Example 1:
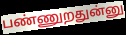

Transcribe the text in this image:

பண்ணுறதுன்னு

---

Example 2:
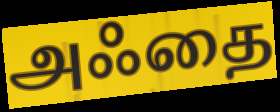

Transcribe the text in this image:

அஃதை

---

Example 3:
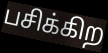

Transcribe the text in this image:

பசிக்கிற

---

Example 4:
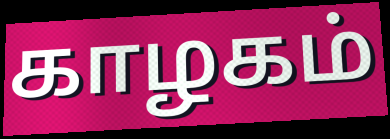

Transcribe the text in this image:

காழகம்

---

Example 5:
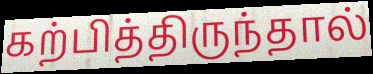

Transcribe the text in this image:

கற்பித்திருந்தால்